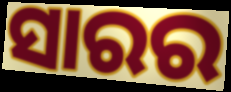
ସାରର